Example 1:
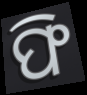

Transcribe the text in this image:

ଫି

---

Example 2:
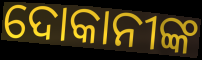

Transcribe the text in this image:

ଦୋକାନୀଙ୍କ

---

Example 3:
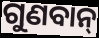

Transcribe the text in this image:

ଗୁଣବାନ୍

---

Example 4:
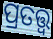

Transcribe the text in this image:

ପ୍ରତତ୍ତ୍ୱ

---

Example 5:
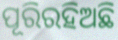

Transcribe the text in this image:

ପୂରିରହିଅଛି